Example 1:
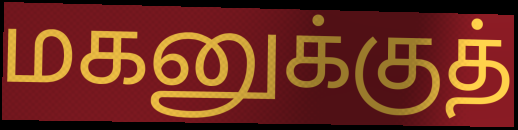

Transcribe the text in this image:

மகனுக்குத்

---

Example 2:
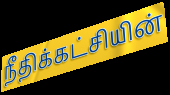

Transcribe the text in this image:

நீதிக்கட்சியின்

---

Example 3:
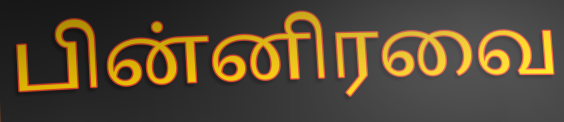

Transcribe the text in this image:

பின்னிரவை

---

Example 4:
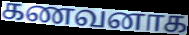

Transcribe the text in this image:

கணவனாக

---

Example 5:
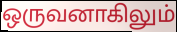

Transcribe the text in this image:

ஒருவனாகிலும்